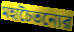
মহাচৈতন্যের